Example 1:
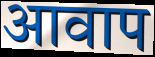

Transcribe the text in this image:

आवाप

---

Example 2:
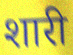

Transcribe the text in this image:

शारी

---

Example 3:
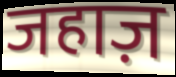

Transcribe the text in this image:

जहाज़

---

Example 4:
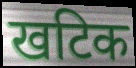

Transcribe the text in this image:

खटिक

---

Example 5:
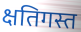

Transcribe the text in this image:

क्षतिगस्त